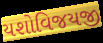
યશોવિજયજી